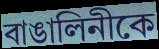
বাঙালিনীকে